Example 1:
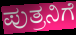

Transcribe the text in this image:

ಪುತ್ರನಿಗೆ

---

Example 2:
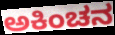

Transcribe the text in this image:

ಅಕಿಂಚನ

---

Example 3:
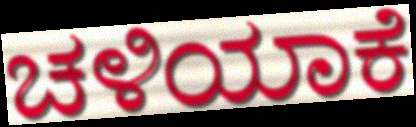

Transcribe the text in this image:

ಚಳಿಯಾಕೆ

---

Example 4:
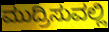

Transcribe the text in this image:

ಮುದ್ರಿಸುವಲ್ಲಿ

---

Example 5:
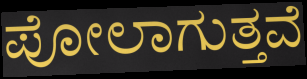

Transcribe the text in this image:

ಪೋಲಾಗುತ್ತವೆ